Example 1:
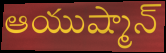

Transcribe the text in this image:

ఆయుష్మాన్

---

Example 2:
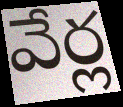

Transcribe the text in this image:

వేర్ల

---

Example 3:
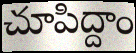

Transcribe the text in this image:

చూపిద్దాం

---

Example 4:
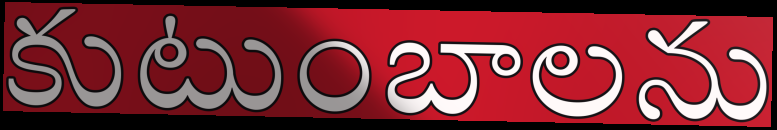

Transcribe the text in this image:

కుటుంబాలను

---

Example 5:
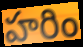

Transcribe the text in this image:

హరిం